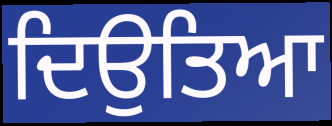
ਦਿਉਤਿਆ